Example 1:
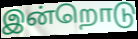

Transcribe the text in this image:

இன்றொடு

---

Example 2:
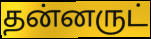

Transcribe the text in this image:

தன்னருட்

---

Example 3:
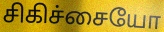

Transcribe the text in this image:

சிகிச்சையோ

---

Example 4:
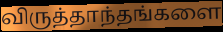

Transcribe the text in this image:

விருத்தாந்தங்களை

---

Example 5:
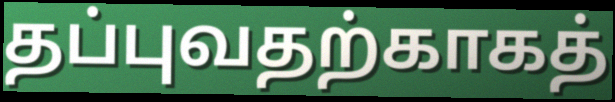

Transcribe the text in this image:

தப்புவதற்காகத்